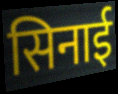
सिनाई